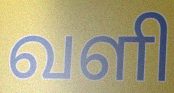
வளி